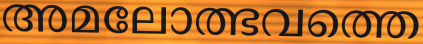
അമലോത്ഭവത്തെ